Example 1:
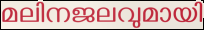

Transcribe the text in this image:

മലിനജലവുമായി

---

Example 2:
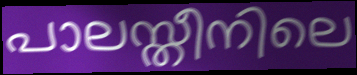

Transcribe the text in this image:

പാലസ്തീനിലെ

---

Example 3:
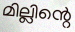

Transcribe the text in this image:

മില്ലിന്റെ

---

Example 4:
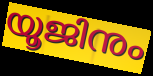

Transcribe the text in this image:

യൂജിനും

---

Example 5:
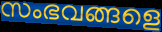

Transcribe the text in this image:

സംഭവങ്ങളെ